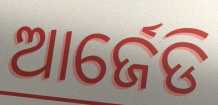
ଆର୍ଜେଡି